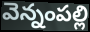
వెన్నంపల్లి